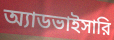
অ্যাডভাইসারি